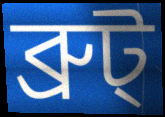
ব্রুট্